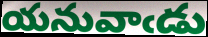
యనువాఁడు